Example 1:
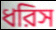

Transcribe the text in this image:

ধরিস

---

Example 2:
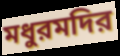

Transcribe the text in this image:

মধুরমদির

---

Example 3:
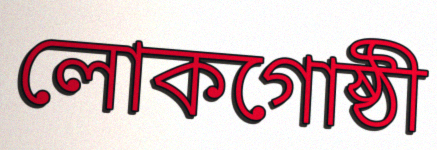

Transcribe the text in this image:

লোকগোষ্ঠী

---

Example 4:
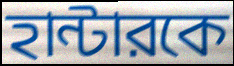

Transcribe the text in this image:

হান্টারকে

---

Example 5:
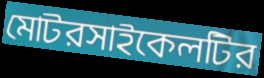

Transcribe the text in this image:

মোটরসাইকেলটির